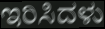
ಇರಿಸಿದಳು